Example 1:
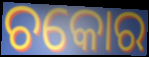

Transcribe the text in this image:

ଚକୋର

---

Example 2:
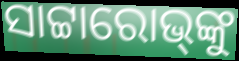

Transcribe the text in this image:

ସାଟ୍ଟାରୋଭ୍‌ଙ୍କୁ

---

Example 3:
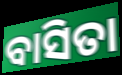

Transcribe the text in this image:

ବାସିତା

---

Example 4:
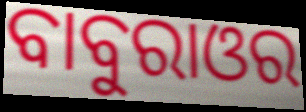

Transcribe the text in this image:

ବାବୁରାଓର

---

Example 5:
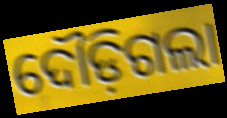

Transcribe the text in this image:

ଦୌଡ଼ିଗଲା